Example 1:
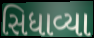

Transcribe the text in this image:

સિધાવ્યા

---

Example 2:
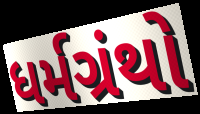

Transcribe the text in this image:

ધર્મગ્રંથો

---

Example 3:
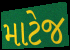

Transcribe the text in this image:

માટેજ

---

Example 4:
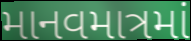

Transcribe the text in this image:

માનવમાત્રમાં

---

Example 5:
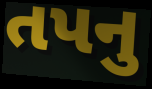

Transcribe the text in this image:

તપનુ